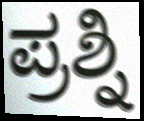
ಪ್ರಶ್ನಿ